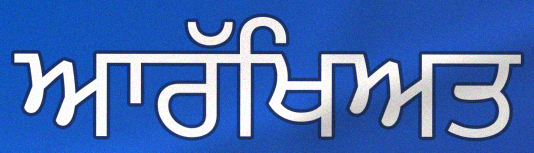
ਆਰੱਖਿਅਤ